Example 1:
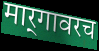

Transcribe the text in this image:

मार्गावरच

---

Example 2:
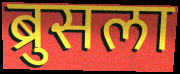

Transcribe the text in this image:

ब्रुसला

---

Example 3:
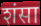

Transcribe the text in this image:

शंसा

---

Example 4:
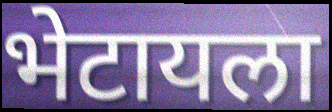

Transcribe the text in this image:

भेटायला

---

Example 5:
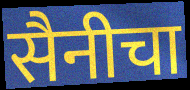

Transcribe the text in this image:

सैनीचा